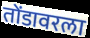
तोंडावरला